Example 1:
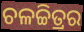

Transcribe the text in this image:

ଚଳଚ୍ଚିତ୍ରର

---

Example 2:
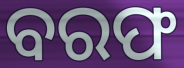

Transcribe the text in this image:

ବରଫ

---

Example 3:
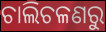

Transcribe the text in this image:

ଚାଲିଚଳଣରୁ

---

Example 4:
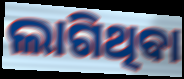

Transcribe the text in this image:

ଲାଗିଥିବା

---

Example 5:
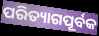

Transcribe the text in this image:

ପରିତ୍ୟାଗପୂର୍ବକ